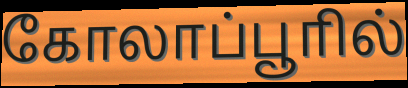
கோலாப்பூரில்